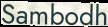
Sambodh